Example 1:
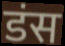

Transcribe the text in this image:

डंस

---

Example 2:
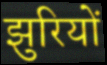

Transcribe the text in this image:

झुरियों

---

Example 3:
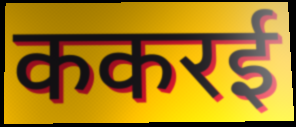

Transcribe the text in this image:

ककरई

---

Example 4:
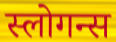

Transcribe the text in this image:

स्लोगन्स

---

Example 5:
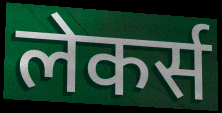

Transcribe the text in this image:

लेकर्स